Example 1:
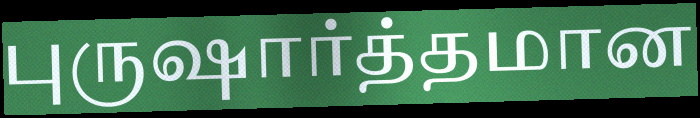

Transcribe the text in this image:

புருஷார்த்தமான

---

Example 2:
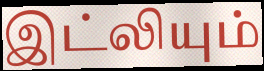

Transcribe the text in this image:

இட்லியும்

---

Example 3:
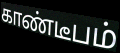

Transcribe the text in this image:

காண்டீபம்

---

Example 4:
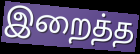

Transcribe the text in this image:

இறைத்த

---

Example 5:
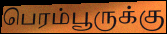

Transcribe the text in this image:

பெரம்பூருக்கு